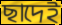
ছাদেই